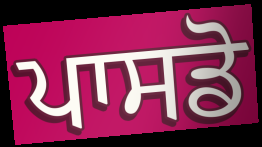
ਪਾਸਡੋ